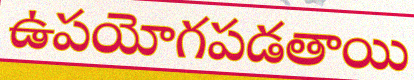
ఉపయోగపడతాయి